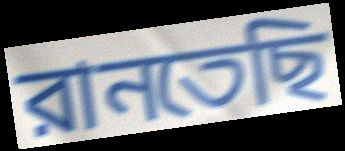
রানতেছি